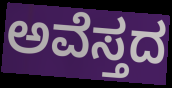
ಅವೆಸ್ತದ